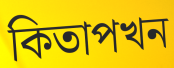
কিতাপখন